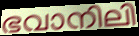
ഭവാനിലി